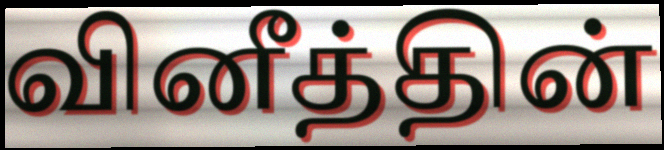
வினீத்தின்